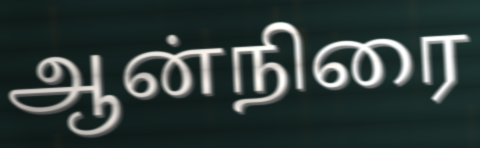
ஆன்நிரை